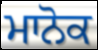
ਮਾਨੋਕ